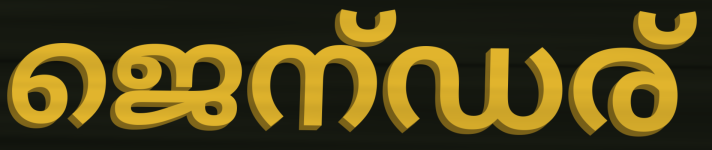
ജെന്ഡര്